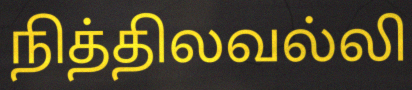
நித்திலவல்லி